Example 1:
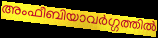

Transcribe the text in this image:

അംഫീബിയാവർഗ്ഗത്തിൽ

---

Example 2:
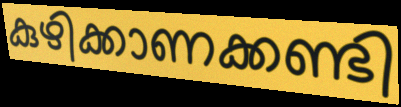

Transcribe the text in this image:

കുഴിക്കാണക്കണ്ടി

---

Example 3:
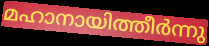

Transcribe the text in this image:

മഹാനായിത്തീർന്നു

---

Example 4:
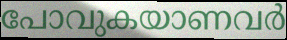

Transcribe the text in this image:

പോവുകയാണവർ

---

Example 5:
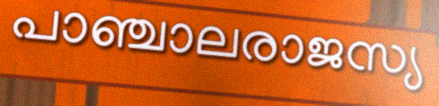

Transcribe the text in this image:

പാഞ്ചാലരാജസ്യ